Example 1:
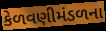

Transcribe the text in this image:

કેળવણીમંડળના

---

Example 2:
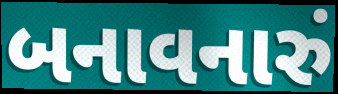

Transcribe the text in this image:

બનાવનારું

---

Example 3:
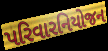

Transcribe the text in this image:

પરિવારનિયોજન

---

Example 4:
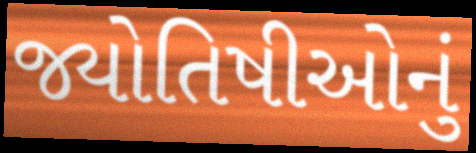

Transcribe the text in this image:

જ્યોતિષીઓનું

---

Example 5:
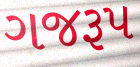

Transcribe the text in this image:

ગજરૂપ